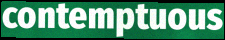
contemptuous